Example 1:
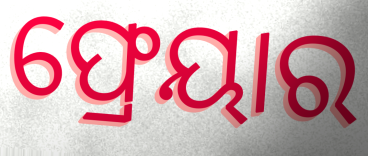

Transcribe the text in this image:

ଫ୍ରେୟାର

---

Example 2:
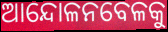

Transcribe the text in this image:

ଆନ୍ଦୋଳନବେଳକୁ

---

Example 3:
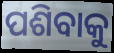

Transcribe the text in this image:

ପଶିବାକୁ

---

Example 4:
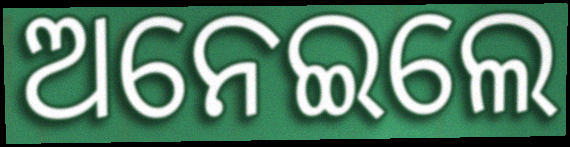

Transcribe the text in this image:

ଅନେଇଲେ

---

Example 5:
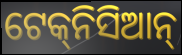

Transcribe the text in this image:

ଟେକ୍‌ନିସିଆନ୍